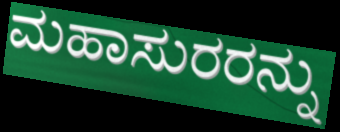
ಮಹಾಸುರರನ್ನು